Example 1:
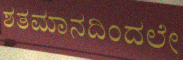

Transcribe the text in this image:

ಶತಮಾನದಿಂದಲೇ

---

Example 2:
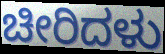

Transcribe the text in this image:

ಚೀರಿದಳು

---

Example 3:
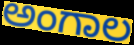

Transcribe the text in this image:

ಅಂಗಾಲ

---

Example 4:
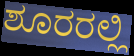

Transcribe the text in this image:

ಶೂರರಲ್ಲಿ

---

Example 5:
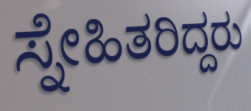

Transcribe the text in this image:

ಸ್ನೇಹಿತರಿದ್ದರು